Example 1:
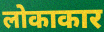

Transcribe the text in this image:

लोकाकार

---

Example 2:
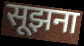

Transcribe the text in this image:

सूझना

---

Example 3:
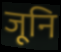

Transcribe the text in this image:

जूनि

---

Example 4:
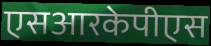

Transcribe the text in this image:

एसआरकेपीएस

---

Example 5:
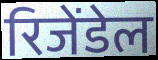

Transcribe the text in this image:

रिजेंडेल